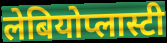
लेबियोप्लास्टी